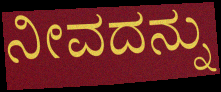
ನೀವದನ್ನು